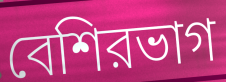
বেশিরভাগ